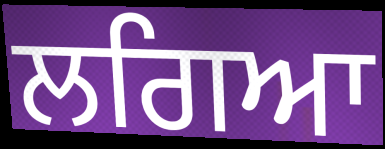
ਲਗਿਆ